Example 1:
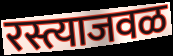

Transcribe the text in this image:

रस्त्याजवळ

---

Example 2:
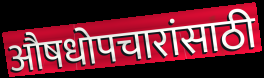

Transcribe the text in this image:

औषधोपचारांसाठी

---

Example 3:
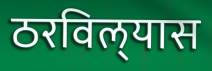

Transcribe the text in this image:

ठरविल्यास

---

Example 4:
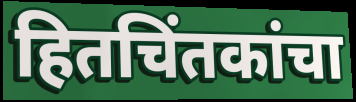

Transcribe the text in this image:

हितचिंतकांचा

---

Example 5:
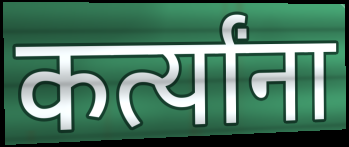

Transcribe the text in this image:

कर्त्यांना